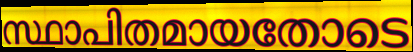
സ്ഥാപിതമായതോടെ